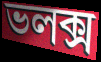
ভলক্স